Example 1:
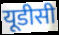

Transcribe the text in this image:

यूडीसी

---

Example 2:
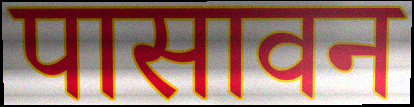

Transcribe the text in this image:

पासावन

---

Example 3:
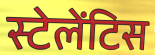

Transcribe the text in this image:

स्टेलेंटिस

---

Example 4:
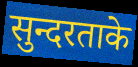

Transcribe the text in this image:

सुन्दरताके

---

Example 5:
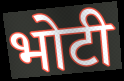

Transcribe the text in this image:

भोटी